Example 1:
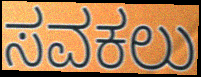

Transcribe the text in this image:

ಸವಕಲು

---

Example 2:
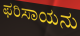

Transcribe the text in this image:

ಫರಿಸಾಯನು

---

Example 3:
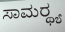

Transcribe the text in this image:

ಸಾಮರ್‍ಥ್ಯ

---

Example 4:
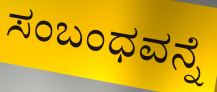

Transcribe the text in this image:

ಸಂಬಂಧವನ್ನೆ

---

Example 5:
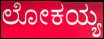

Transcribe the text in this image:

ಲೋಕಯ್ಯ